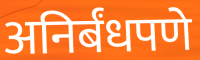
अनिर्बंधपणे